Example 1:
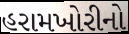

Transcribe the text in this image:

હરામખોરીનો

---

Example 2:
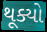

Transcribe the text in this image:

થૂક્યો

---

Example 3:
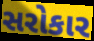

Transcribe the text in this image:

સરોકાર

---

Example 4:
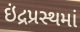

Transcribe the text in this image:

ઇંદ્રપ્રસ્થમાં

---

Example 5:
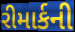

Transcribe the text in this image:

રીમાર્કની